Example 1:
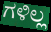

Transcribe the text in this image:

ಗಳಿಲ್ಲ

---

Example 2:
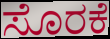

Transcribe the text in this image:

ಸೊರಕೆ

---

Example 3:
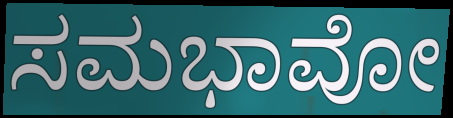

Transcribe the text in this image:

ಸಮಭಾವೋ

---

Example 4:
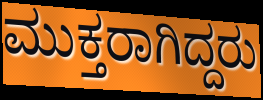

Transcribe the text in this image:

ಮುಕ್ತರಾಗಿದ್ದರು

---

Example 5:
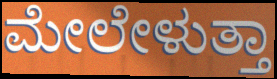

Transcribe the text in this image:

ಮೇಲೇಳುತ್ತಾ